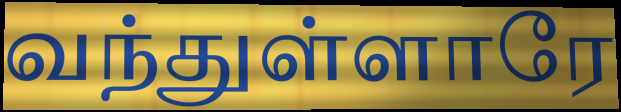
வந்துள்ளாரே